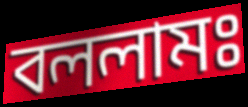
বললামঃ